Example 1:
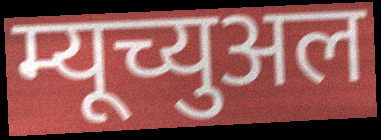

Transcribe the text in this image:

म्यूच्युअल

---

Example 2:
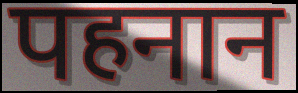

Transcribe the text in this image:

पहनान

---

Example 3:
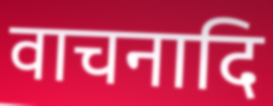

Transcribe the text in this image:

वाचनादि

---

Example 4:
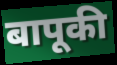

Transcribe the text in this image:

बापूकी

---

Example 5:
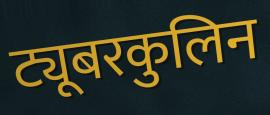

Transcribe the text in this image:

ट्यूबरकुलिन